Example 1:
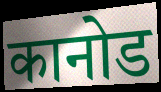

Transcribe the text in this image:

कानोड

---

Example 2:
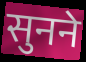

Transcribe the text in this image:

सुनने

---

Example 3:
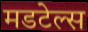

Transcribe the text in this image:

मडटेल्स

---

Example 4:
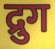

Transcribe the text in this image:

द्रुग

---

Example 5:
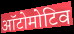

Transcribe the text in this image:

ऑटोमोटिव